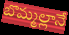
బొమ్మల్లానే